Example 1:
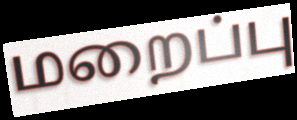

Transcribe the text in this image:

மறைப்பு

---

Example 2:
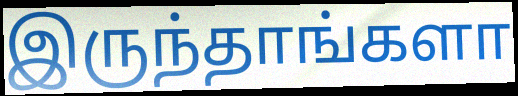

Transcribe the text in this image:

இருந்தாங்களா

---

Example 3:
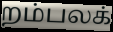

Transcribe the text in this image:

றம்பலக்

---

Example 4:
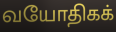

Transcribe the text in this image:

வயோதிகக்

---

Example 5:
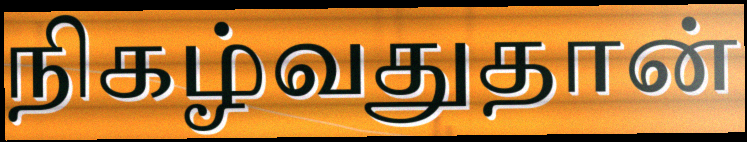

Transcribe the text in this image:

நிகழ்வதுதான்